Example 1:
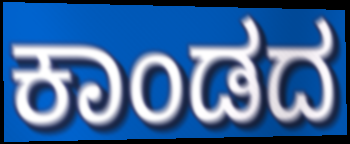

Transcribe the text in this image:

ಕಾಂಡದ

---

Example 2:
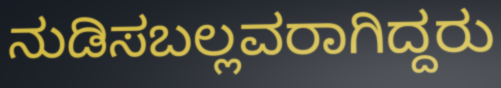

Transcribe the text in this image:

ನುಡಿಸಬಲ್ಲವರಾಗಿದ್ದರು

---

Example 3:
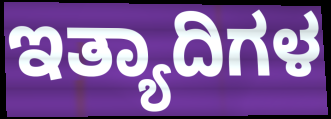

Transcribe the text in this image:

ಇತ್ಯಾದಿಗಳ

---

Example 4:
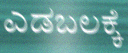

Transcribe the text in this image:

ಎಡಬಲಕ್ಕೆ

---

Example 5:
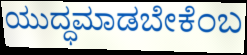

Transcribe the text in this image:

ಯುದ್ಧಮಾಡಬೇಕೆಂಬ